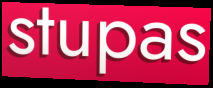
stupas